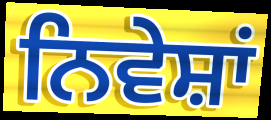
ਨਿਵੇਸ਼ਾਂ